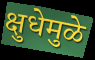
क्षुधेमुळे